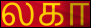
லகா